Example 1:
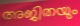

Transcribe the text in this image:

അജിതയും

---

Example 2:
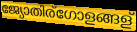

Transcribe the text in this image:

ജ്യോതിര്ഗോളങ്ങള്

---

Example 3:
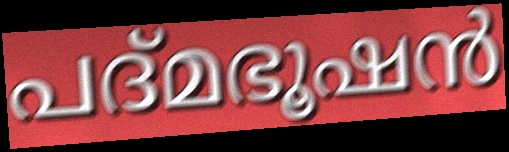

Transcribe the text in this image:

പദ്മഭൂഷൻ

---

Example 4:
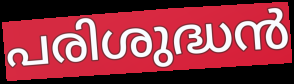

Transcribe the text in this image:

പരിശുദ്ധൻ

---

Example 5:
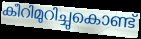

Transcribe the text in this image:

കീറിമുറിച്ചുകൊണ്ട്